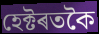
হেক্টৰতকৈ